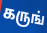
கருங்